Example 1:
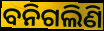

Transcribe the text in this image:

ବନିଗଲିଣି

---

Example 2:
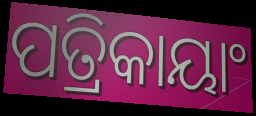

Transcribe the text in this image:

ପତ୍ରିକାୟାଂ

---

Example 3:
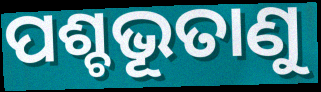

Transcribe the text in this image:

ପଶ୍ଚଭୂତାଣୁ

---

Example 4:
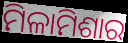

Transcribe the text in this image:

ମିଳାମିଶାର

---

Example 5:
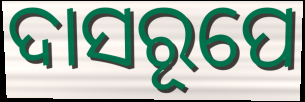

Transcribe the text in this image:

ଦାସରୂପେ